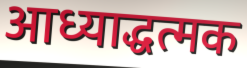
आध्याद्धत्मक